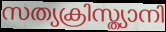
സത്യക്രിസ്ത്യാനി